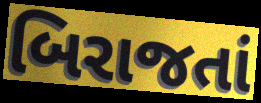
બિરાજતાં